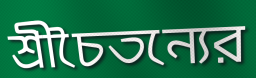
শ্রীচৈতন্যের